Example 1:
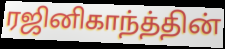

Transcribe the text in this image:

ரஜினிகாந்த்தின்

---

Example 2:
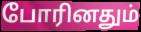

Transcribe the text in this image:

போரினதும்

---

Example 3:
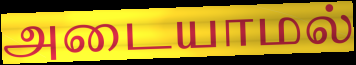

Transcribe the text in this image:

அடையாமல்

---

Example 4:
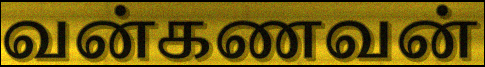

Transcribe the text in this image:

வன்கணவன்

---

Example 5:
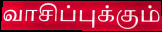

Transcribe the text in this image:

வாசிப்புக்கும்